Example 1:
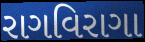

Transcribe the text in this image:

રાગવિરાગા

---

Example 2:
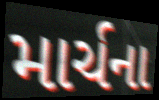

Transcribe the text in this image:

માર્ચના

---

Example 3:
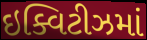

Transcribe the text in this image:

ઇક્વિટીઝમાં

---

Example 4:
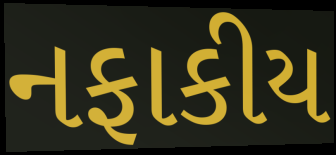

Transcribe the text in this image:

નફાકીય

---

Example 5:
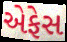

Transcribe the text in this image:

એફેસ